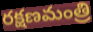
రక్షణమంత్రి